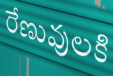
రేణువులకి